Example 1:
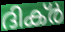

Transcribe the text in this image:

ദിക്ർ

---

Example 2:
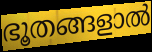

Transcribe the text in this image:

ഭൂതങ്ങളാൽ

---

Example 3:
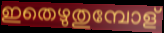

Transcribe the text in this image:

ഇതെഴുതുമ്പോള്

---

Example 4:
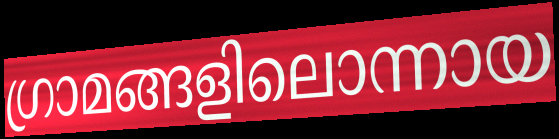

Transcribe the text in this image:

ഗ്രാമങ്ങളിലൊന്നായ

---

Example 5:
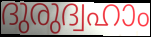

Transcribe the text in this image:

ദുരുദ്വഹാം